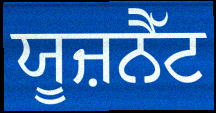
ਯੂਜ਼ਨੈੱਟ